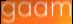
gaam